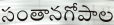
సంతానగోపాల